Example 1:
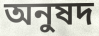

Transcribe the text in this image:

অনুষদ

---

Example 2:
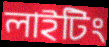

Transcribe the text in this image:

লাইটিং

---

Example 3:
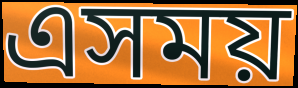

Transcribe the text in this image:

এসময়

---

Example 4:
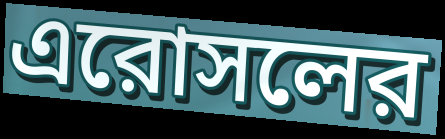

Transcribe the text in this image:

এরোসলের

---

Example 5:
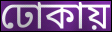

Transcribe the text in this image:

ঢোকায়